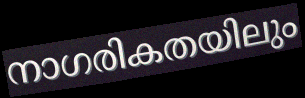
നാഗരികതയിലും